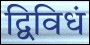
द्विविधं